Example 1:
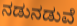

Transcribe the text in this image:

ನಡುನಡುವೆ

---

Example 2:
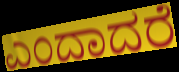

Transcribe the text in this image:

ಎಂದಾದರೆ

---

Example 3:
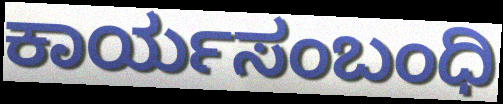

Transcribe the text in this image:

ಕಾರ್ಯಸಂಬಂಧಿ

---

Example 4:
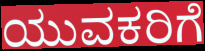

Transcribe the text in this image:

ಯುವಕರಿಗೆ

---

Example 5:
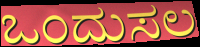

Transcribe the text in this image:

ಒಂದುಸಲ